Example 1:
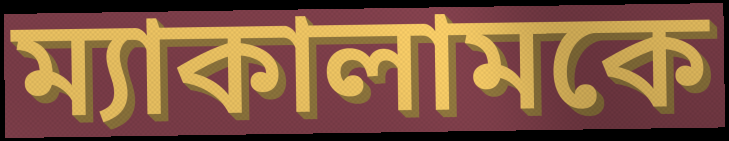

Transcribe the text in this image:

ম্যাকালামকে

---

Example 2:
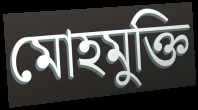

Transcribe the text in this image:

মোহমুক্তি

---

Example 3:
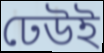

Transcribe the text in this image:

ঢেউই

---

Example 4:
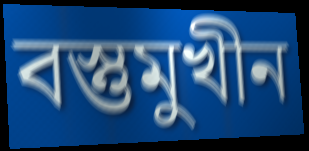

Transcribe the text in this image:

বস্তুমুখীন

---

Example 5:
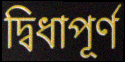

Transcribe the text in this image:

দ্বিধাপূর্ণ